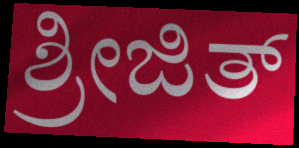
ಶ್ರೀಜಿತ್